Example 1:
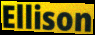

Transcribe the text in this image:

Ellison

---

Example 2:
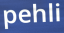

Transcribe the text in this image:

pehli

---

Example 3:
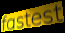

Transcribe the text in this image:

fastest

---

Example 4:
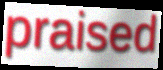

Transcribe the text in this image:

praised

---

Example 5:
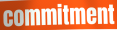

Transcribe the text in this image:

commitment